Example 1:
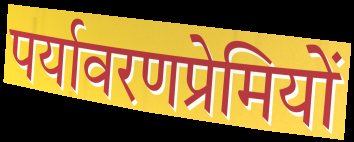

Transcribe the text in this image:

पर्यावरणप्रेमियों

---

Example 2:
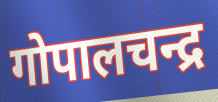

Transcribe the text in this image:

गोपालचन्द्र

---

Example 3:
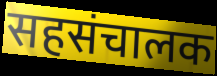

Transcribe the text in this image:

सहसंचालक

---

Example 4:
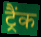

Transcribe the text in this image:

ट्रैंक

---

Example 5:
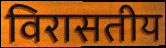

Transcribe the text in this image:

विरासतीय